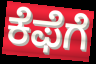
ಕೆಫೆಗೆ